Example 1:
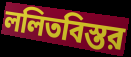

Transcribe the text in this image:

ললিতবিস্তর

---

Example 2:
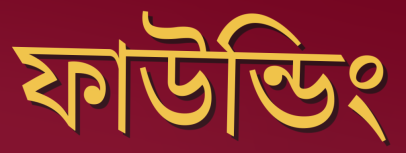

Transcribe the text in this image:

ফাউন্ডিং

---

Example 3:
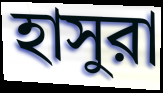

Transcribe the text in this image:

হাসুরা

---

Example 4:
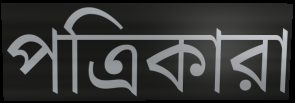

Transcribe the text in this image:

পত্রিকারা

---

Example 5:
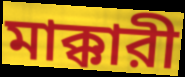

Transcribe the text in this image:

মাক্কারী